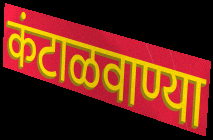
कंटाळवाण्या